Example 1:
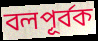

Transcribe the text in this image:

বলপূৰ্বক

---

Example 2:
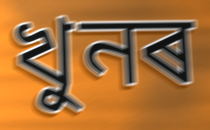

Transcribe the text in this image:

খুনৰ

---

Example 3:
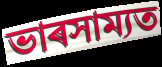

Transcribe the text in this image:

ভাৰসাম্যত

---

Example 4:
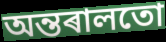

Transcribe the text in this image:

অন্তৰালতো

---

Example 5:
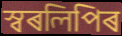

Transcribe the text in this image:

স্বৰলিপিৰ